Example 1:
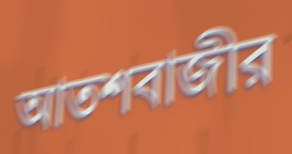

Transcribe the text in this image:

আতশবাজীর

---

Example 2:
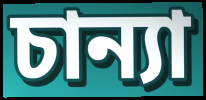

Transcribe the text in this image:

চান্যা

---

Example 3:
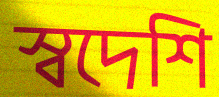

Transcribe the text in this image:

স্বদেশি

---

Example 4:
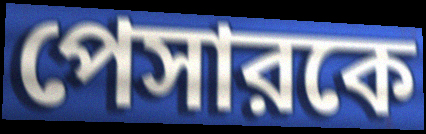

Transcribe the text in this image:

পেসারকে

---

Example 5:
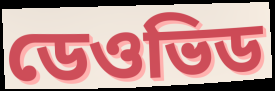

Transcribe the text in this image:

ডেওভিড